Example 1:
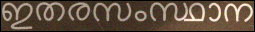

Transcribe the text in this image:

ഇതരസംസ്ഥാന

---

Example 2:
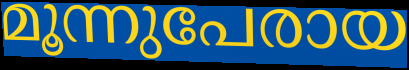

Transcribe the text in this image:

മൂന്നുപേരായ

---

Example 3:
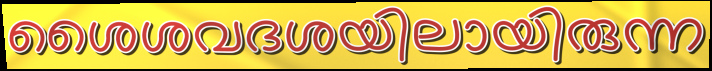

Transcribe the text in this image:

ശൈശവദശയിലായിരുന്ന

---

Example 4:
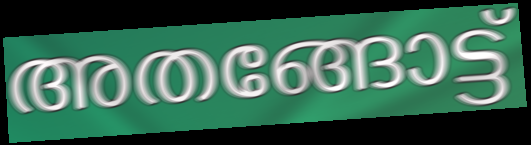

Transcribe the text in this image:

അതങ്ങോട്ട്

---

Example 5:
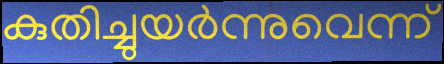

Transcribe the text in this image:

കുതിച്ചുയർന്നുവെന്ന്